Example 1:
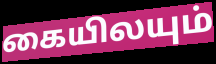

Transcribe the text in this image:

கையிலயும்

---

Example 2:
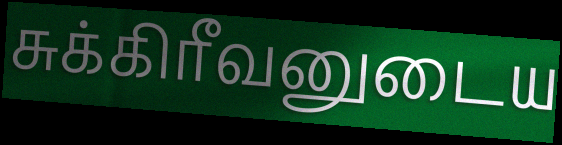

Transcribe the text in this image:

சுக்கிரீவனுடைய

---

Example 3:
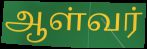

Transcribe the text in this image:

ஆள்வர்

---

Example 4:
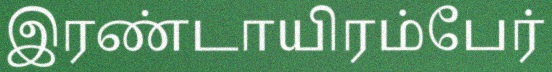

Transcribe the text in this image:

இரண்டாயிரம்பேர்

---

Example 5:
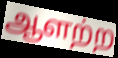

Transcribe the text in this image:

ஆளற்ற